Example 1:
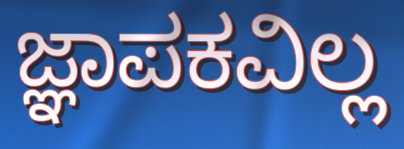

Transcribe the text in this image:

ಜ್ಞಾಪಕವಿಲ್ಲ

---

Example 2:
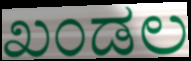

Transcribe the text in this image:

ಖಂಡಲ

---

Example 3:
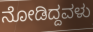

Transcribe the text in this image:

ನೋಡಿದ್ದವಳು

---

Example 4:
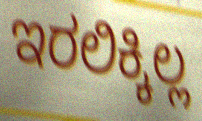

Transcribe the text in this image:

ಇರಲಿಕ್ಕಿಲ್ಲ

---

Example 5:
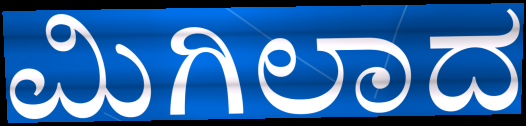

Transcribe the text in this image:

ಮಿಗಿಲಾದ